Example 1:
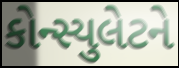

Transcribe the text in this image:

કોન્સ્યુલેટને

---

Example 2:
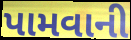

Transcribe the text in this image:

પામવાની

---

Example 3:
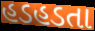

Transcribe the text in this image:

હડહડતા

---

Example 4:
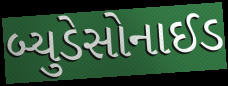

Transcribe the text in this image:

બ્યુડેસોનાઈડ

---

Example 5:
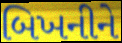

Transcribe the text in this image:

બિખનીને